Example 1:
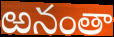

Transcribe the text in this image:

ఱనంతా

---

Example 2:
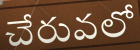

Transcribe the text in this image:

చేరువలో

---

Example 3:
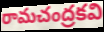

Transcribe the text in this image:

రామచంద్రకవి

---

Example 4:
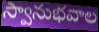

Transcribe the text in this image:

స్వానుభవాల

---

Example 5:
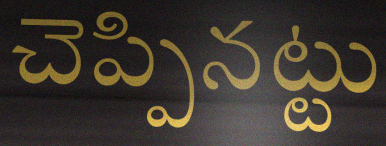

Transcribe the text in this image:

చెప్పినట్టు